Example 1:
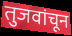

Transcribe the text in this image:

तुजवांचून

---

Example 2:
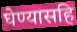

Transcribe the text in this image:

घेण्यासहि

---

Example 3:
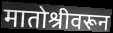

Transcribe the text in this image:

मातोश्रीवरून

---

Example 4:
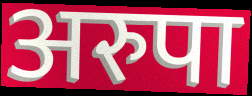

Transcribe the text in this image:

अरुपा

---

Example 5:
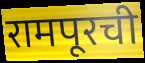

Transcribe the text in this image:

रामपूरची